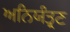
ਅਨਿਯੰਤ੍ਰਣ